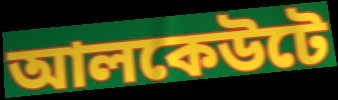
আলকেউটে